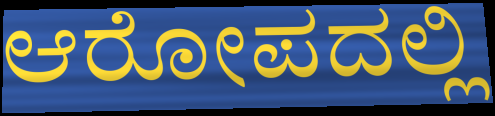
ಆರೋಪದಲ್ಲಿ